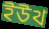
ইউথ